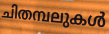
ചിതമ്പലുകൾ